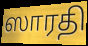
ஸாரதி